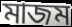
মাজম